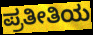
ಪ್ರತೀತಿಯ